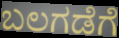
ಬಲಗಡೆಗೆ